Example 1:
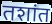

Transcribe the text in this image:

तशांत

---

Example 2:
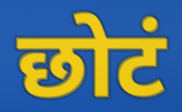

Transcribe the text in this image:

छोटं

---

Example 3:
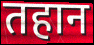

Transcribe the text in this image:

तहान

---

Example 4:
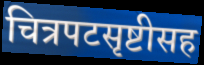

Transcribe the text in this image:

चित्रपटसृष्टीसह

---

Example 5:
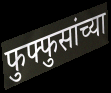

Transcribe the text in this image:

फुफ्फुसांच्या